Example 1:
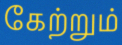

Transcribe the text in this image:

கேற்றும்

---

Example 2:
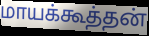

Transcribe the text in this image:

மாயக்கூத்தன்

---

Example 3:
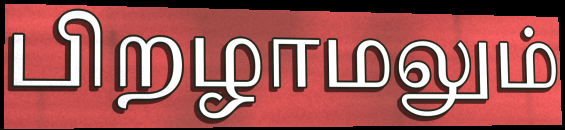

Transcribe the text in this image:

பிறழாமலும்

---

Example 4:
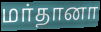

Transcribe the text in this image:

மர்தானா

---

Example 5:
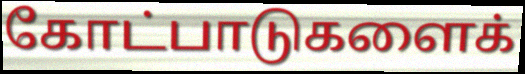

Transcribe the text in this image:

கோட்பாடுகளைக்